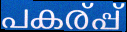
പകര്പ്പ്